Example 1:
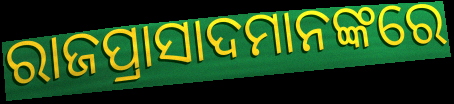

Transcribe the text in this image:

ରାଜପ୍ରାସାଦମାନଙ୍କରେ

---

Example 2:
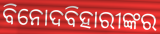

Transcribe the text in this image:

ବିନୋଦବିହାରୀଙ୍କର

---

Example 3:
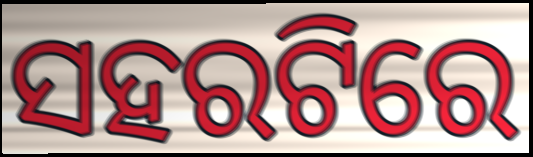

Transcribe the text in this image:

ସହରଟିରେ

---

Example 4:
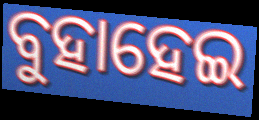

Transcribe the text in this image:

ବୁହାହେଇ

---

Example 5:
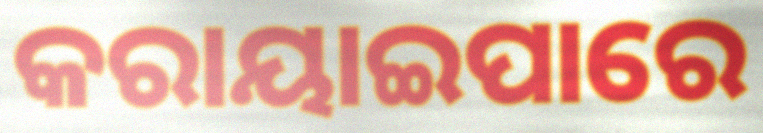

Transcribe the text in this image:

କରାୟାଇପାରେ